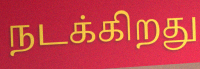
நடக்கிறது